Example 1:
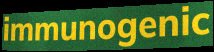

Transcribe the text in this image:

immunogenic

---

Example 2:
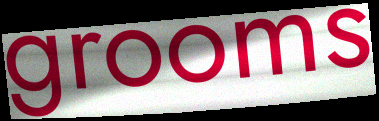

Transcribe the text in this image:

grooms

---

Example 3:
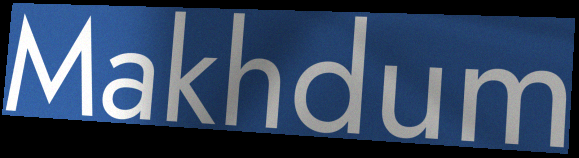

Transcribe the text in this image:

Makhdum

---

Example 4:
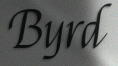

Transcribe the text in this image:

Byrd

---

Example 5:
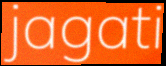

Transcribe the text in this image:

jagati